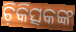
ଚ଼ିକିତ୍ସକଙ୍କ